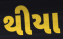
થીયા